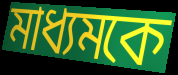
মাধ্যমকে